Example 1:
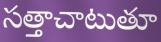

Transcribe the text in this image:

సత్తాచాటుతూ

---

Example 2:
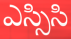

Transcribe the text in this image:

ఎస్సిసి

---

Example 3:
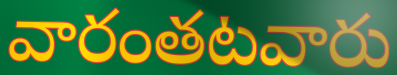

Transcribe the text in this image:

వారంతటవారు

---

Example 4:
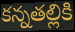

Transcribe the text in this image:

కన్నతల్లికి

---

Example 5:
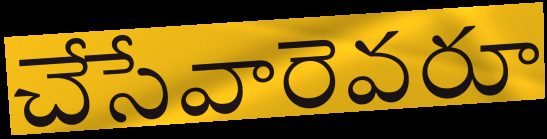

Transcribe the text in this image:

చేసేవారెవరూ